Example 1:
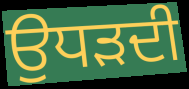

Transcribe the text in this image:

ਉਧੜਦੀ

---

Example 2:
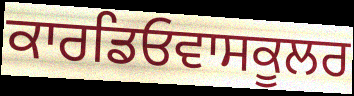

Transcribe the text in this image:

ਕਾਰਡਿਓਵਾਸਕੂਲਰ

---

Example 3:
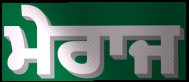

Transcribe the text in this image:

ਮੇਰਾਜ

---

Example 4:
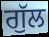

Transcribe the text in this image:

ਗੁੱਲ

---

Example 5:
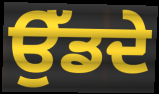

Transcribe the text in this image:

ਉੱਡਦੇ